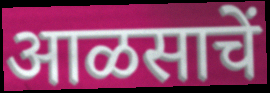
आळसाचें